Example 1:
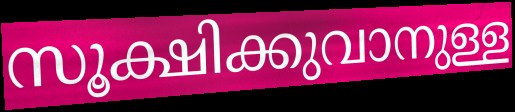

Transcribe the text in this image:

സൂക്ഷിക്കുവാനുള്ള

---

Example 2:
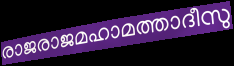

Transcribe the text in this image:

രാജരാജമഹാമത്താദീസു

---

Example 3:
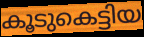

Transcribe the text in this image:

കൂടുകെട്ടിയ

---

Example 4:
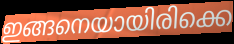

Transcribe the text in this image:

ഇങ്ങനെയായിരിക്കെ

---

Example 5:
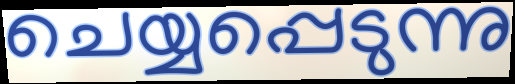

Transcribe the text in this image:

ചെയ്യപ്പെടുന്നു